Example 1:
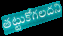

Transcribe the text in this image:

తట్టుకోగలదని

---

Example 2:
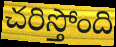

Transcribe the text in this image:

చరిస్తోంది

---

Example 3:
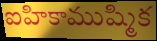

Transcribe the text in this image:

ఐహికాముష్మిక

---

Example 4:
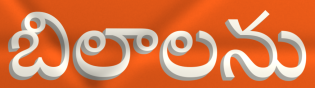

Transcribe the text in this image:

బిలాలను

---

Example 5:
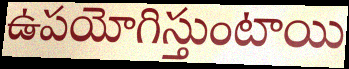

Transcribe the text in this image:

ఉపయోగిస్తుంటాయి